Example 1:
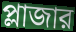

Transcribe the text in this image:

প্লাজার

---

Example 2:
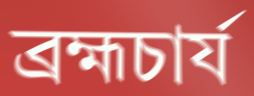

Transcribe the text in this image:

ব্রহ্মচার্য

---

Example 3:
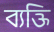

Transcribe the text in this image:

ব্যক্তি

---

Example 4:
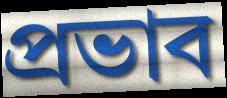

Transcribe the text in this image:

প্রভাব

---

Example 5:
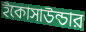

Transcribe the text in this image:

ইকোসাউন্ডার